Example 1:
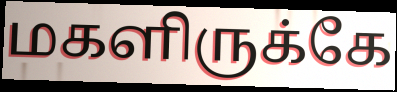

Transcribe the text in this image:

மகளிருக்கே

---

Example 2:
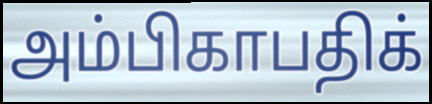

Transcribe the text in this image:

அம்பிகாபதிக்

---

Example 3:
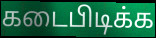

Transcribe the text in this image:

கடைபிடிக்க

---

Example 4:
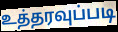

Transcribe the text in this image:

உத்தரவுப்படி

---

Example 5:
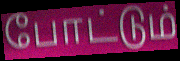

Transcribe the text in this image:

போட்டும்